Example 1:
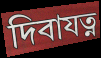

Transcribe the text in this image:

দিবাযত্ন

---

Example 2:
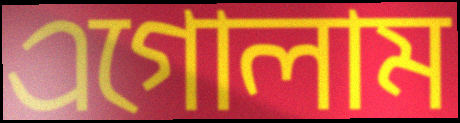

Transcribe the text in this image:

এগোলাম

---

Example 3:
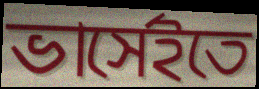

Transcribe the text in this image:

ভার্সেইতে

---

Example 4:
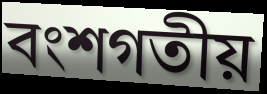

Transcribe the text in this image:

বংশগতীয়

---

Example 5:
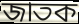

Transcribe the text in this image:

জাতক